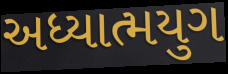
અધ્યાત્મયુગ